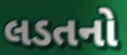
લડતનો